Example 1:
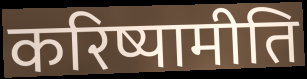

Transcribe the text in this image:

करिष्यामीति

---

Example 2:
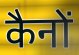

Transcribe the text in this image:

कैनों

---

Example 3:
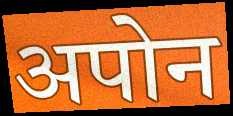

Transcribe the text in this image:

अपोन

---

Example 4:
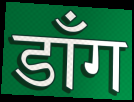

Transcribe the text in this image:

डाँग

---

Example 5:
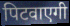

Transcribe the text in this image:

पिटवाएगी